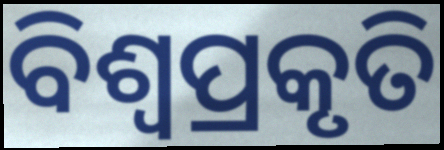
ବିଶ୍ଵପ୍ରକୃତି